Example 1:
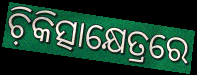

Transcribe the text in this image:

ଚ଼ିକିତ୍ସାକ୍ଷେତ୍ରରେ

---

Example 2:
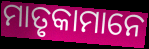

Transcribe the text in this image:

ମାତୃକାମାନେ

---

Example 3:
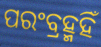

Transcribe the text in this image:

ପରଂବ୍ରହ୍ମହିଁ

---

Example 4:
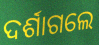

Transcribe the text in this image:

ଦର୍ଶାଗଲେ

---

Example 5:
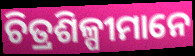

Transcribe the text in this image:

ଚିତ୍ରଶିଳ୍ପୀମାନେ